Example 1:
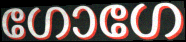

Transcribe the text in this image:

ഗോഗേ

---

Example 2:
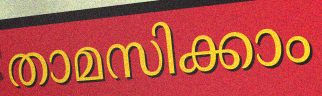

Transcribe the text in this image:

താമസിക്കാം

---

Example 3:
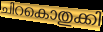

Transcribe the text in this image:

ചിറകൊതുക്കി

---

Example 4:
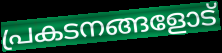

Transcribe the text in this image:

പ്രകടനങ്ങളോട്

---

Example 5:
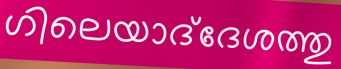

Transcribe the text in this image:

ഗിലെയാദ്‌ദേശത്തു